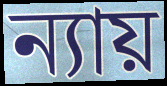
ন্যায়